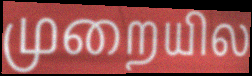
முறையில